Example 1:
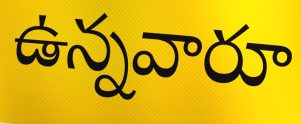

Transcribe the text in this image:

ఉన్నవారూ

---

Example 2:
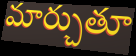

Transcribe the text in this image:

మార్చుతూ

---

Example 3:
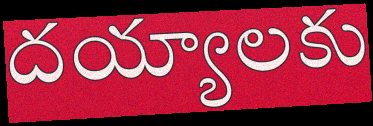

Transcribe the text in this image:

దయ్యాలకు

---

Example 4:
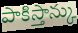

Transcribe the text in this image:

పాకిస్తాన్కు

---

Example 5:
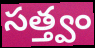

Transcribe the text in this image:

సత్త్వం